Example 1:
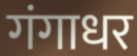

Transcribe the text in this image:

गंगाधर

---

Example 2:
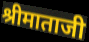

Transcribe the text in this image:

श्रीमाताजी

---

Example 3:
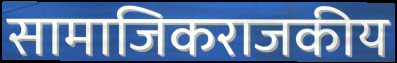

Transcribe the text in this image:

सामाजिकराजकीय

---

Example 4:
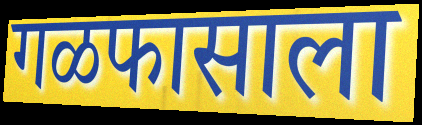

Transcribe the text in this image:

गळफासाला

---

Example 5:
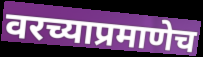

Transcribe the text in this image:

वरच्याप्रमाणेच